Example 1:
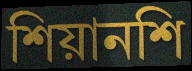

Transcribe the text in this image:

শিয়ানশি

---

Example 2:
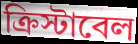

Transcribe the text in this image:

ক্রিস্টাবেল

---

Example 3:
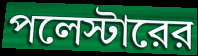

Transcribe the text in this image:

পলেস্টারের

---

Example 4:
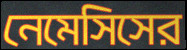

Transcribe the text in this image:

নেমেসিসের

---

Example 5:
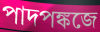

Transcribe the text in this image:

পাদপঙ্কজে